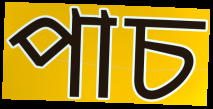
পাচ